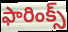
ఫారింక్స్